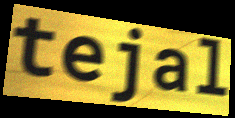
tejal